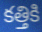
కత్తికి